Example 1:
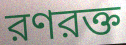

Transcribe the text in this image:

রণরক্ত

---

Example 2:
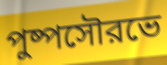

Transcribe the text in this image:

পুষ্পসৌরভে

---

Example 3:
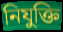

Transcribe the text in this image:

নিযুক্তি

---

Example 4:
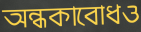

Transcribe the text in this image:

অন্ধকাবোধও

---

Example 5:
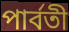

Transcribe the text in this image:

পার্বতী